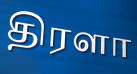
திரளா